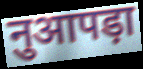
नुआपड़ा